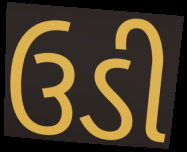
ઉડી